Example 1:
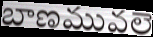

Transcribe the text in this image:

బాణమువలె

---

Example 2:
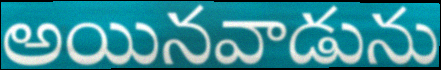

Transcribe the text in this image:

అయినవాడును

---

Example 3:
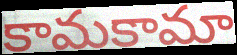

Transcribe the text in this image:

కామకామా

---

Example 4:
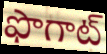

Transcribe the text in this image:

ఫొగాట్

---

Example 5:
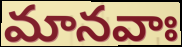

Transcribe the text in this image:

మానవాః